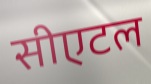
सीएटल